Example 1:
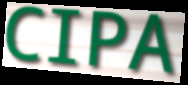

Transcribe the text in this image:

CIPA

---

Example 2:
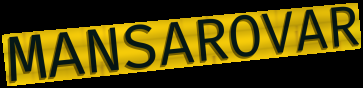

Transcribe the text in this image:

MANSAROVAR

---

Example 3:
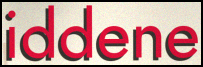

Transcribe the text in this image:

iddene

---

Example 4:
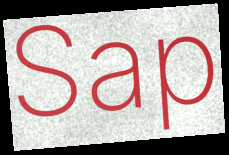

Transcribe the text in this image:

Sap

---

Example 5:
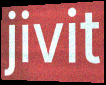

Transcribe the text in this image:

jivit